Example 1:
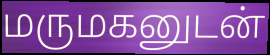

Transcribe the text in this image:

மருமகனுடன்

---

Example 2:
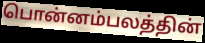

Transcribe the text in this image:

பொன்னம்பலத்தின்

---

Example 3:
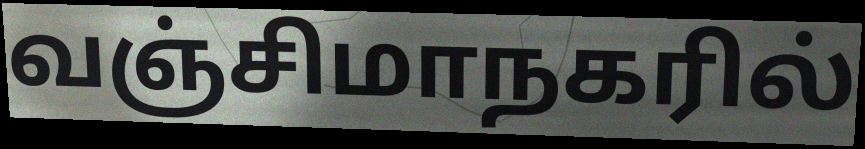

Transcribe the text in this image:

வஞ்சிமாநகரில்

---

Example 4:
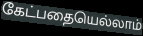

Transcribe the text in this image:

கேட்பதையெல்லாம்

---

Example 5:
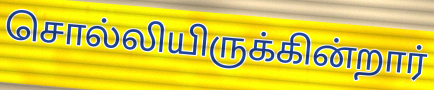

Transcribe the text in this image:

சொல்லியிருக்கின்றார்